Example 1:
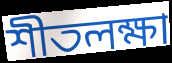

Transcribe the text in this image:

শীতলক্ষা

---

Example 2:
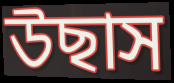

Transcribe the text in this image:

উছাস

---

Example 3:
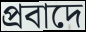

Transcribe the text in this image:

প্রবাদে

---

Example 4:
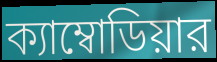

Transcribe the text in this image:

ক্যাম্বোডিয়ার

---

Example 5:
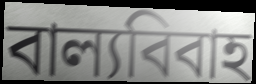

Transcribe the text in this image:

বাল্যবিবাহ